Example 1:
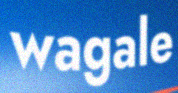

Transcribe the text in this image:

wagale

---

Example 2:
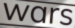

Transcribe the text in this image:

wars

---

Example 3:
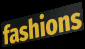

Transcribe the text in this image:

fashions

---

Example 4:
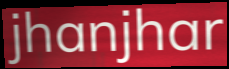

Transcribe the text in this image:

jhanjhar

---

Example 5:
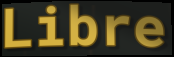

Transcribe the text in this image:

Libre